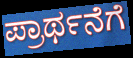
ಪ್ರಾರ್ಥನೆಗೆ